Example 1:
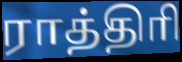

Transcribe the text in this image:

ராத்திரி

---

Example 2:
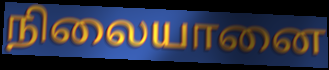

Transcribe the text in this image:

நிலையானை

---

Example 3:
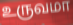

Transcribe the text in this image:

உருவமா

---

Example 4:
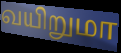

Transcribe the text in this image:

வயிறுமா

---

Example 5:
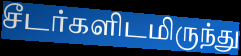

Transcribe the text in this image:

சீடர்களிடமிருந்து